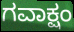
ಗವಾಕ್ಷಂ